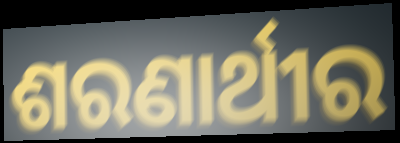
ଶରଣାର୍ଥୀର